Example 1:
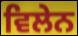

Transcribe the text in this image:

ਵਿਲੇਨ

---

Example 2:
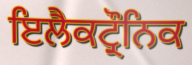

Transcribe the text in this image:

ਇਲੈਕਟ੍ਰੌਨਿਕ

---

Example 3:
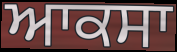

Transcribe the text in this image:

ਆਕਸਾ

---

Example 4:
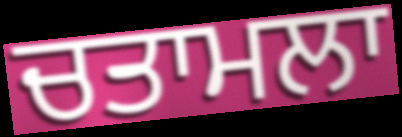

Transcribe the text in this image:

ਚਤਾਮਲਾ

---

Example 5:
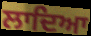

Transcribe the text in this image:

ਲਾਦਿਆ